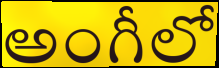
అంగీలో